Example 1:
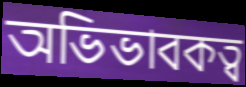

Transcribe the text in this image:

অভিভাবকত্ব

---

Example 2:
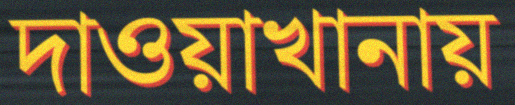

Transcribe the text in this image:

দাওয়াখানায়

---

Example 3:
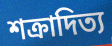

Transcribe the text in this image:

শক্রাদিত্য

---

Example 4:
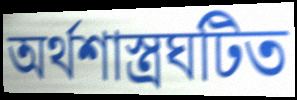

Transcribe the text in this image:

অর্থশাস্ত্রঘটিত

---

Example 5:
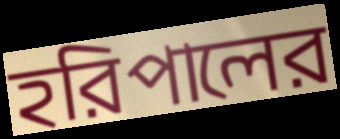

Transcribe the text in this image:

হরিপালের